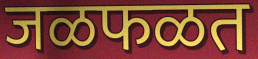
जळफळत